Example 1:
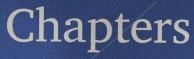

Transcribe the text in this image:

Chapters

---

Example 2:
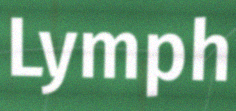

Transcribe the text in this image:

Lymph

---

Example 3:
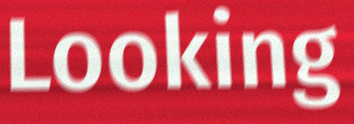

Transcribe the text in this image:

Looking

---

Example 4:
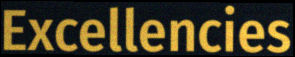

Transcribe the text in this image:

Excellencies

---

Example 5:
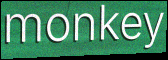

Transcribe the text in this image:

monkey